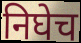
निघेच